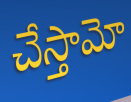
చేస్తామో